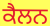
ਕੈਲਨ